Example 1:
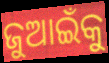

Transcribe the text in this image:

ଜୁଆଇଁକୁ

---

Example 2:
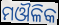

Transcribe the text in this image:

ମଔଳିକ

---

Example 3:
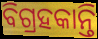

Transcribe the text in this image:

ବିଗ୍ରହକାନ୍ତି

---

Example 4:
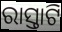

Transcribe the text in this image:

ରାସ୍ତାଟି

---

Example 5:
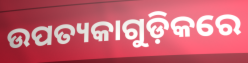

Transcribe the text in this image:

ଉପତ୍ୟକାଗୁଡ଼ିକରେ